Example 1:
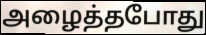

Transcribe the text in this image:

அழைத்தபோது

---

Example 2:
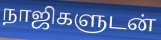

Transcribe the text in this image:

நாஜிகளுடன்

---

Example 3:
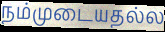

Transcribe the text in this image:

நம்முடையதல்ல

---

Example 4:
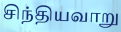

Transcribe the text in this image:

சிந்தியவாறு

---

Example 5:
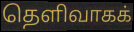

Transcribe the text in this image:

தெளிவாகக்